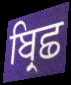
ਬ੍ਰਿਛ